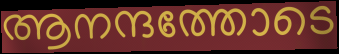
ആനന്ദത്തോടെ